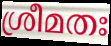
ശ്രീമതഃ